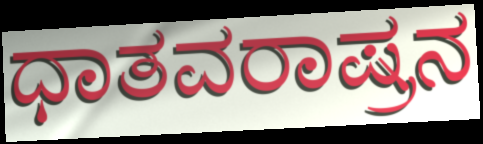
ಧಾತವರಾಷ್ರನ